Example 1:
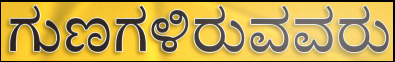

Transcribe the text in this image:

ಗುಣಗಳಿರುವವರು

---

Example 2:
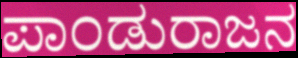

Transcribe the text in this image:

ಪಾಂಡುರಾಜನ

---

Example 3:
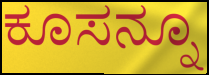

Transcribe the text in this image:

ಕೂಸನ್ನೂ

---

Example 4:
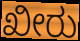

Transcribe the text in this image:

ಖೀರು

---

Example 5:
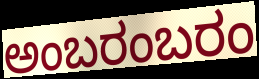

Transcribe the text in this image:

ಅಂಬರಂಬರಂ